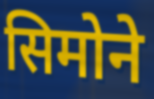
सिमोने